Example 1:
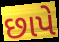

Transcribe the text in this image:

છાપે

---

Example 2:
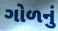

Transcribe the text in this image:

ગોળનું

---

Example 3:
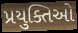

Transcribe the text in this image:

પ્રયુક્તિઓ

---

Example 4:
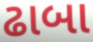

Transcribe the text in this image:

ઢાબા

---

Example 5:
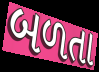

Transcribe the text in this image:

બળતા